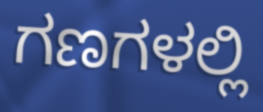
ಗಣಗಳಲ್ಲಿ